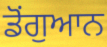
ਡੋਂਗੁਆਨ